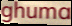
ghuma